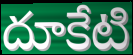
దూకేటి